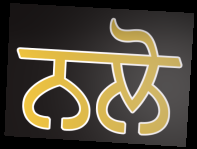
ਨਲੋ